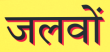
जलवों